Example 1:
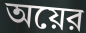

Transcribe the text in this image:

অয়ের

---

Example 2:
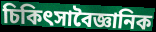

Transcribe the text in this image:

চিকিৎসাবৈজ্ঞানিক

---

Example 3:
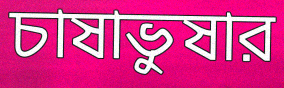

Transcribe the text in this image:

চাষাভুষার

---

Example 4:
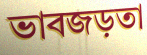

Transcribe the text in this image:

ভাবজড়তা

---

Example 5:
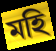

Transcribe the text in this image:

মহি